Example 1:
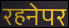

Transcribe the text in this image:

रहनेपर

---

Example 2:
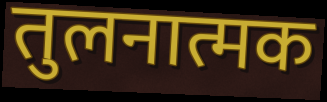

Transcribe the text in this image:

तुलनात्मक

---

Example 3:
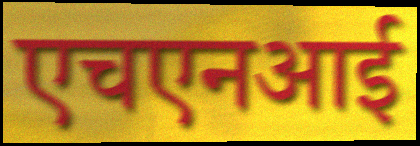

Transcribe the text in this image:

एचएनआई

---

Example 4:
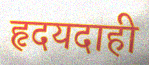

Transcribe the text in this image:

हृदयदाही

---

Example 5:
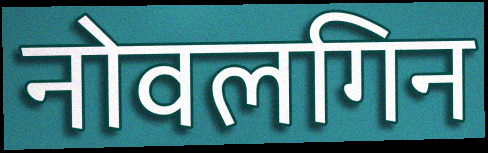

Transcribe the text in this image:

नोवलगिन